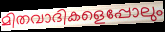
മിതവാദികളെപ്പോലും